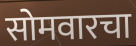
सोमवारचा